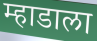
म्हाडाला